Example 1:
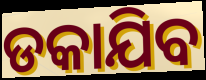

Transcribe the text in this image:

ଡକାଯିବ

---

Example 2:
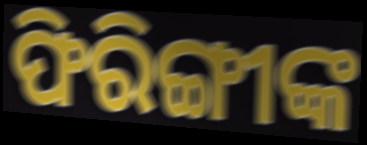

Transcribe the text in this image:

ଫିରିଙ୍ଗୀଙ୍କ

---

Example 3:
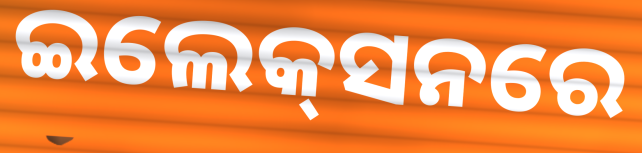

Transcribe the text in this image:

ଇଲେକ୍‍ସନରେ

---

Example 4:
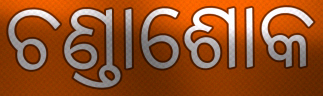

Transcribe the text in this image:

ଚଣ୍ଡାଶୋକ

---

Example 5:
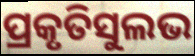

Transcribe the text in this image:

ପ୍ରକୃତିସୁଲଭ